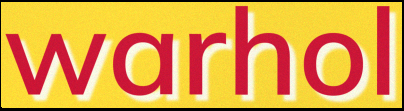
warhol